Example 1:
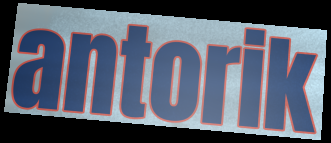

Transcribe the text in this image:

antorik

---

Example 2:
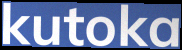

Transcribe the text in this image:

kutoka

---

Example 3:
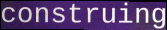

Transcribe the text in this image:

construing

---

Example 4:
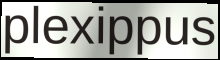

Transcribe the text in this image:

plexippus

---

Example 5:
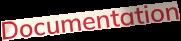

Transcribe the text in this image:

Documentation